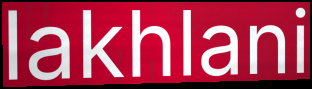
lakhlani